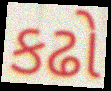
કઢો